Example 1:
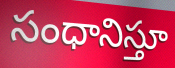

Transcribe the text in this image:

సంధానిస్తూ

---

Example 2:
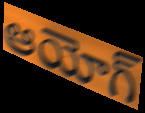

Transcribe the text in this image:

ఆయోగ్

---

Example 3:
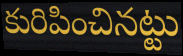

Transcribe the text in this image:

కురిపించినట్టు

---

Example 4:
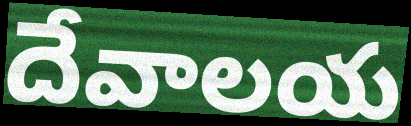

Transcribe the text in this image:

దేవాలయ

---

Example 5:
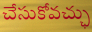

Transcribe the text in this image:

చేసుకోవచ్ఛు